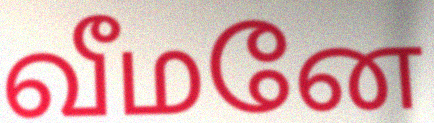
வீமனே